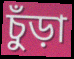
চুঁড়া